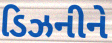
ડિઝનીને